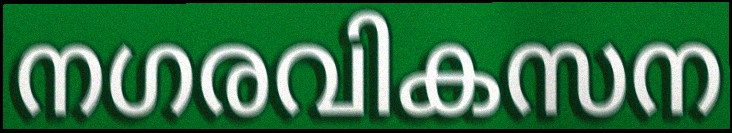
നഗരവികസന